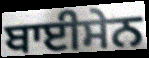
ਬਾਈਸੇਨ